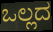
ಒಲ್ಲದ